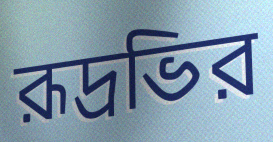
রূদ্রভির